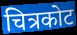
चित्रकोट